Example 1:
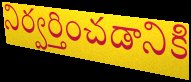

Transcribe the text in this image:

నిర్వర్తించడానికి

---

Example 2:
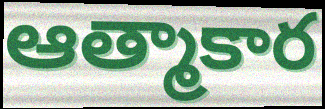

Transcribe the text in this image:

ఆత్మాకార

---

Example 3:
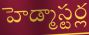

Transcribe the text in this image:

హెడ్మాస్టర్ల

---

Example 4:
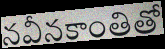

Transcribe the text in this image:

నవీనకాంతితో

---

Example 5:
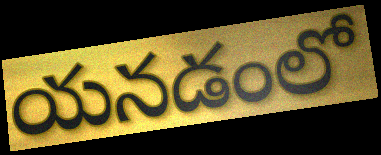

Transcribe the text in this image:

యనడంలో